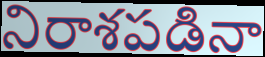
నిరాశపడినా